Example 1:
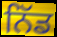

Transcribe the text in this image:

ਨਿੱਡ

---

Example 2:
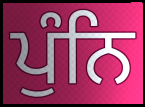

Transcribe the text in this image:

ਪੁੰਨਿ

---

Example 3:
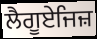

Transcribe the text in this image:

ਲੈਗੂਏਜਿਜ਼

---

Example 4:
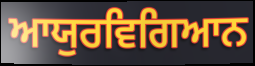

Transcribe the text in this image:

ਆਯੁਰਵਿਗਿਆਨ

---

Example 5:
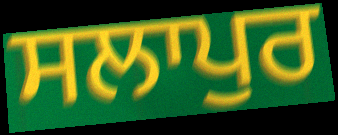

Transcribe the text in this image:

ਸਲਾਪੁਰ